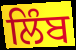
ਲਿੰਬ